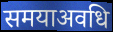
समयाअवधि